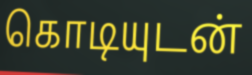
கொடியுடன்